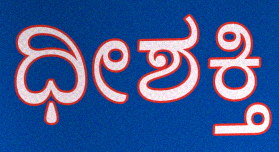
ಧೀಶಕ್ತಿ